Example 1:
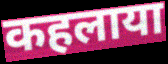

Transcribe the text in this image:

कहलाया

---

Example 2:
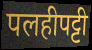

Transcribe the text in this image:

पलहीपट्टी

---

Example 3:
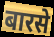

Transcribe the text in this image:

बारसे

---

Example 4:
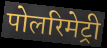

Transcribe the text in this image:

पोलरिमेट्री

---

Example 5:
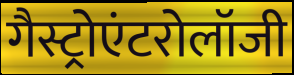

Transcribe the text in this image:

गैस्ट्रोएंटरोलॉजी